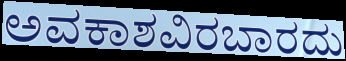
ಅವಕಾಶವಿರಬಾರದು